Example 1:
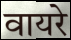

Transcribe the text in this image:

वायरे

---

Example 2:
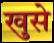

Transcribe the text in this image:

खुसे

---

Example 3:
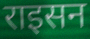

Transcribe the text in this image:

राइसन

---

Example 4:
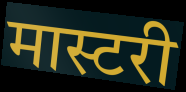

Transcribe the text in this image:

मास्टरी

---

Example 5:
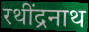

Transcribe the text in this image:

रथींद्रनाथ